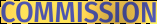
COMMISSION